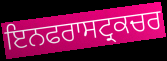
ਇਨਫਰਾਸਟ੍ਰਕਚਰ